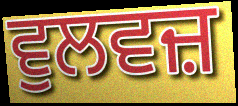
ਵੁਲਵਜ਼